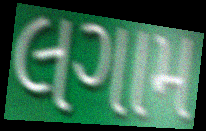
લગામ